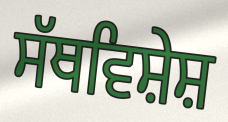
ਸੱਥਵਿਸ਼ੇਸ਼